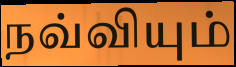
நவ்வியும்